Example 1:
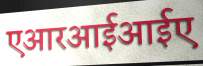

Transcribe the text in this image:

एआरआईआईए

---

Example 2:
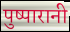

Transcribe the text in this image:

पुष्पारानी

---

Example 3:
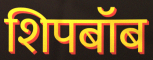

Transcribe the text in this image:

शिपबॉब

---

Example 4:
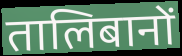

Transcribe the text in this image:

तालिबानों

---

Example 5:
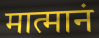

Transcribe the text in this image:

मात्मानं